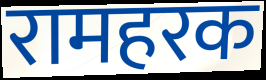
रामहरक